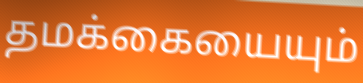
தமக்கையையும்